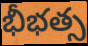
భీభత్స